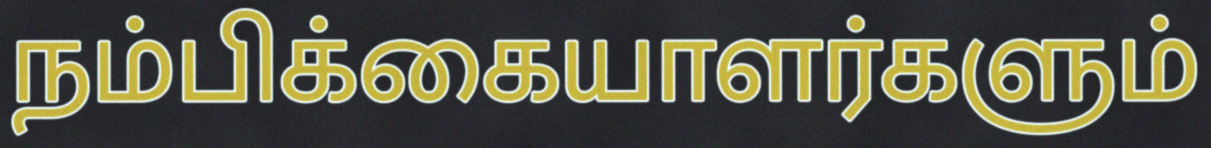
நம்பிக்கையாளர்களும்